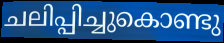
ചലിപ്പിച്ചുകൊണ്ടു